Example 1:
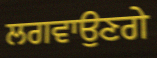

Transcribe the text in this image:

ਲਗਵਾਉਣਗੇ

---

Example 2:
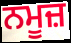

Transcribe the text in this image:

ਨਮੂਜ਼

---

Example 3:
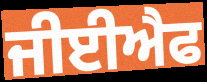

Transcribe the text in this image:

ਜੀਈਐਫ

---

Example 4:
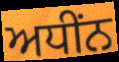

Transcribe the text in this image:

ਅਧੀਂਨ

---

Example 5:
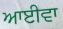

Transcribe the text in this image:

ਆਈਵਾ